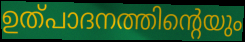
ഉത്പാദനത്തിന്റെയും